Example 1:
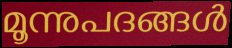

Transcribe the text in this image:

മൂന്നുപദങ്ങൾ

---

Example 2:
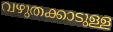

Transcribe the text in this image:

വഴുതക്കാടുള്ള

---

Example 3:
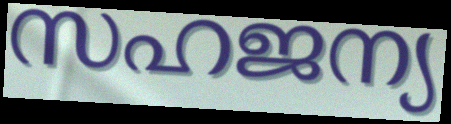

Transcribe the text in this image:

സഹജന്യ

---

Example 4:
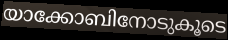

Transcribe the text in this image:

യാക്കോബിനോടുകൂടെ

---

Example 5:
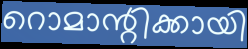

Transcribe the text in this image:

റൊമാന്റിക്കായി